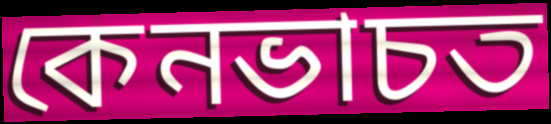
কেনভাচত